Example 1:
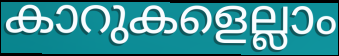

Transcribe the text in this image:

കാറുകളെല്ലാം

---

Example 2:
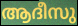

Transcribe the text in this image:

ആദീസു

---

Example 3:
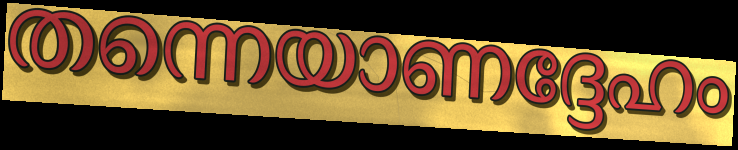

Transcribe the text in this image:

തന്നെയാണദ്ദേഹം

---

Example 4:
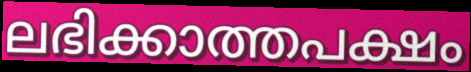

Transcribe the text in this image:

ലഭിക്കാത്തപക്ഷം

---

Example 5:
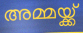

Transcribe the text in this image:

അമ്മയ്ക്ക്